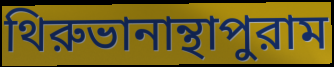
থিরুভানান্থাপুরাম